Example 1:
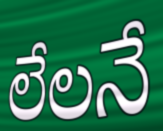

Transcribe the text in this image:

లేలనే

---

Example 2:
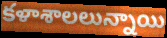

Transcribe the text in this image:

కళాశాలలున్నాయి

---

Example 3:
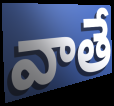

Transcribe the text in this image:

వాతే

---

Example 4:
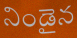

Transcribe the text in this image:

నిండైన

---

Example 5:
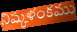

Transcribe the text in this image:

నిష్కళంకము